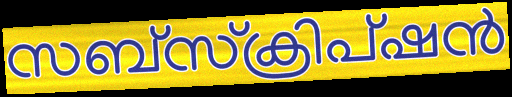
സബ്സ്ക്രിപ്ഷൻ